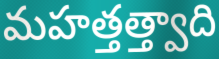
మహత్తత్త్వాది